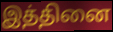
இத்தினை